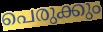
പെരുക്കും